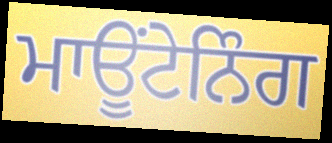
ਮਾਊਂਟੇਨਿੰਗ